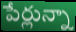
పేర్లున్నా